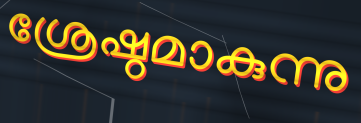
ശ്രേഷ്ഠമാകുന്നു